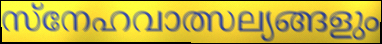
സ്നേഹവാത്സല്യങ്ങളും